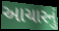
આચારનું